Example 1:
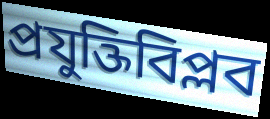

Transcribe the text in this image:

প্রযুক্তিবিপ্লব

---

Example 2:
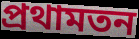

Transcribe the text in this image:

প্রথামতন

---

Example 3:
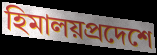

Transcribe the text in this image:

হিমালয়প্রদেশে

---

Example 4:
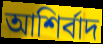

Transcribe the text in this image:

আশির্বাদ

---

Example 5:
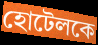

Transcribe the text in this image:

হোটেলকে